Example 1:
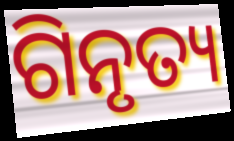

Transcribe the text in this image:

ଗିନୃତ୍ୟ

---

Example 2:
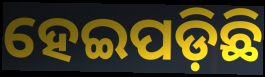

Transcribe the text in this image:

ହେଇପଡ଼ିଛି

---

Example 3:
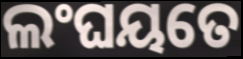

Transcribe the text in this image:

ଲଂଘୟତେ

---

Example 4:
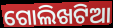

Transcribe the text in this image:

ଗୋଲିଖଟିଆ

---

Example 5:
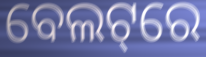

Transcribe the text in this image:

ବେଲଟ୍‌ରେ